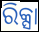
ରିକ୍ସା